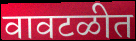
वावटळीत